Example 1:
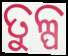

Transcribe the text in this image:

ତୁଳ୍ପ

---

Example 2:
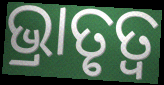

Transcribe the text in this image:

ଭ୍ରାତୃତ୍ଵ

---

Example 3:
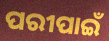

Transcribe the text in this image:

ପରୀପାଇଁ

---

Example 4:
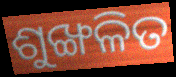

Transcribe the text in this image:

ଶୁଙ୍ଖଳିତ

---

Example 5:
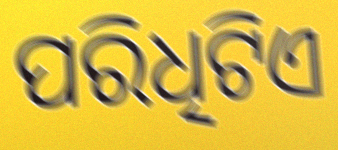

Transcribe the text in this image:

ପରିଧିଟିଏ